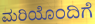
ಮರಿಯೊಂದಿಗೆ